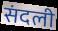
संदली